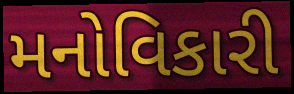
મનોવિકારી